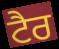
ਟੈਰ